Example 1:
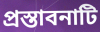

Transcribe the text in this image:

প্রস্তাবনাটি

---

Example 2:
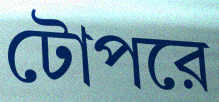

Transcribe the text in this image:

টোপরে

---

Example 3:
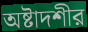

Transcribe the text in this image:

অষ্টাদশীর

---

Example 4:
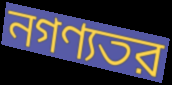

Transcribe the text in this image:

নগণ্যতর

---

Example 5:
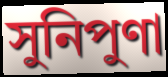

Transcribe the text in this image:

সুনিপুণা